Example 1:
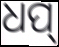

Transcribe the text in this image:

ଧପ୍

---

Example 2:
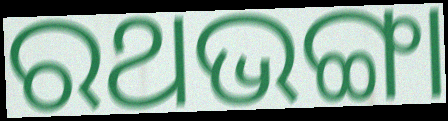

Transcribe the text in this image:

ରଥଭଙ୍ଗା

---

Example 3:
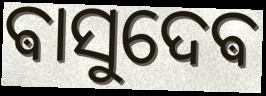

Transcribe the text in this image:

ଵାସୁଦେଵ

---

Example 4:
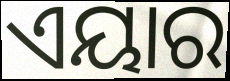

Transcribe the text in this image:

ଏୟାର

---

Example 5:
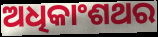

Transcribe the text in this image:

ଅଧିକାଂଶଥର